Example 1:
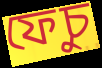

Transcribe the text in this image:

ফেচু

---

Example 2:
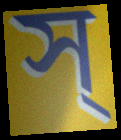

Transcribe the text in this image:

স্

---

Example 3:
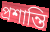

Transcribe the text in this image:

প্ৰশান্তি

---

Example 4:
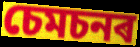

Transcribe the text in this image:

চেমচনৰ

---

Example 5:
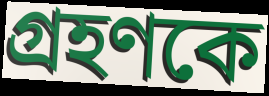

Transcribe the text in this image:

গ্ৰহণকে